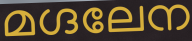
മഗ്ദലേന